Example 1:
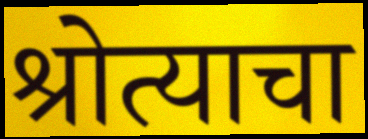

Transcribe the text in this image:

श्रोत्याचा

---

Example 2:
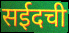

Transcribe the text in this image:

सईदची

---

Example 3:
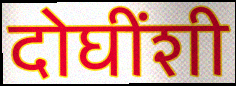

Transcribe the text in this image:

दोघींशी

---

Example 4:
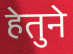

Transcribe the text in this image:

हेतुने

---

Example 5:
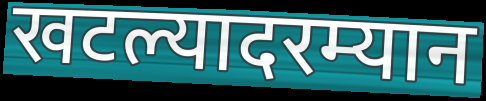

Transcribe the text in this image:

खटल्यादरम्यान